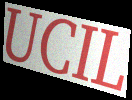
UCIL